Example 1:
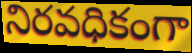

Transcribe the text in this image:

నిరవధికంగా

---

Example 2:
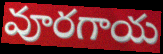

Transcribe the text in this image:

వూరగాయ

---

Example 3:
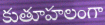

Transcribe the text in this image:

కుతూహలంగా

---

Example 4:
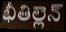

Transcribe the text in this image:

భీతిల్లెన్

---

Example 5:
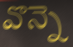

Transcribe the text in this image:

వొన్నె